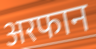
अरफान